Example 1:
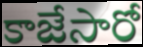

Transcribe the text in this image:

కాజేసారో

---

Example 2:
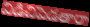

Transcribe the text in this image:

విడిచిపెడతారా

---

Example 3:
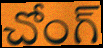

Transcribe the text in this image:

చోంగ్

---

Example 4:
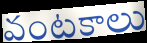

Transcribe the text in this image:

వంటకాలు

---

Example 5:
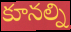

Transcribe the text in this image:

కూనల్ని